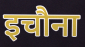
इचौना